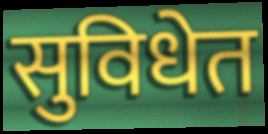
सुविधेत